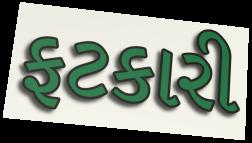
ફટકારી